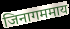
जिनागममाय